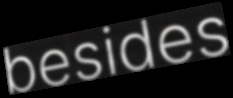
besides